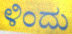
ಳಿಂದು